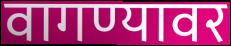
वागण्यावर